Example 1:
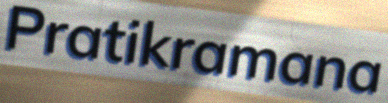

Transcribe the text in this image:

Pratikramana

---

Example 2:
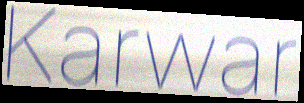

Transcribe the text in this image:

Karwar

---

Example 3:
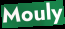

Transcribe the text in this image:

Mouly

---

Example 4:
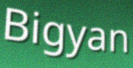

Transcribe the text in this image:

Bigyan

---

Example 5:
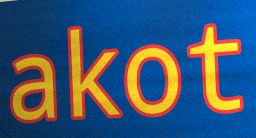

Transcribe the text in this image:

akot